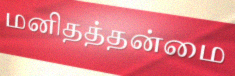
மனிதத்தன்மை